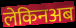
लेकिनअब